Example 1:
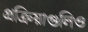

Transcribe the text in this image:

প্রক্রিয়াগুলিও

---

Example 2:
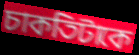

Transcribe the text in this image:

চাকতিটাকে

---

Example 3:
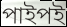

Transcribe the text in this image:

পাইপই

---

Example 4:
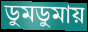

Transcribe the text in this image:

ডুমডুমায়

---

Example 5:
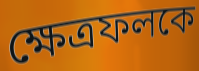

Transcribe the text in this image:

ক্ষেত্রফলকে